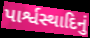
પાર્શ્વસ્થાદિનું